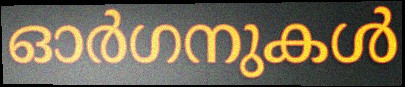
ഓർഗനുകൾ